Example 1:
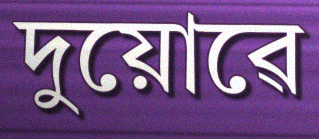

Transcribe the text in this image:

দুয়োৱে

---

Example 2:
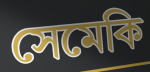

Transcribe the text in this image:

সেমেকি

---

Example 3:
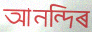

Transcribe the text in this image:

আনন্দিৰ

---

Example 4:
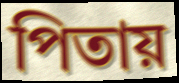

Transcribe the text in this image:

পিতায়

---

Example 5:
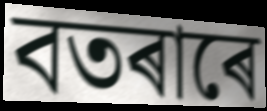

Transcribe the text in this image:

বতৰাৰে